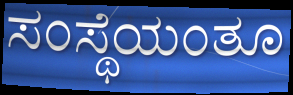
ಸಂಸ್ಥೆಯಂತೂ